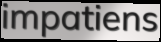
impatiens